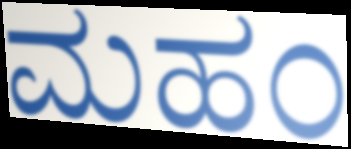
ಮಹಂ